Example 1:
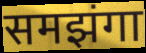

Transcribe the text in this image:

समझंगा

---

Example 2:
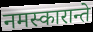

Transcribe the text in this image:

नमस्कारान्ते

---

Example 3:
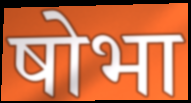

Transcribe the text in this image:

षोभा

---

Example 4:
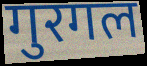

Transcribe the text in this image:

गुरगल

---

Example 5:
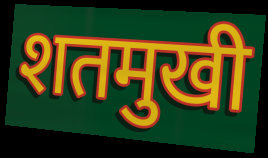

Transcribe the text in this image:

शतमुखी